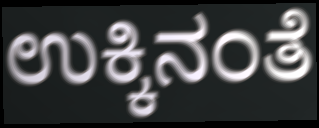
ಉಕ್ಕಿನಂತೆ